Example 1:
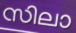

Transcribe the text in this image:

സിലാ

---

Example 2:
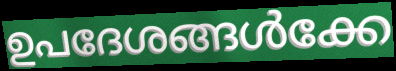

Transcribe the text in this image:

ഉപദേശങ്ങൾക്കേ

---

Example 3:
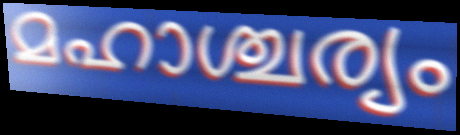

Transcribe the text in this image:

മഹാശ്ചര്യം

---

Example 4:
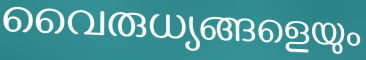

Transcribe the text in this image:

വൈരുധ്യങ്ങളെയും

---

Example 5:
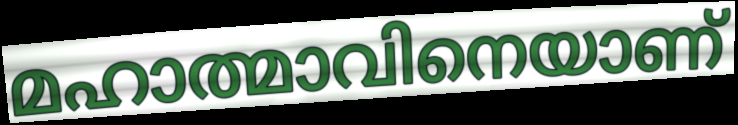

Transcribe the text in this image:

മഹാത്മാവിനെയാണ്